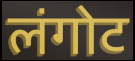
लंगोट